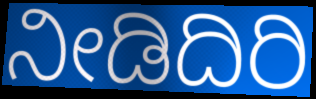
ನೀಡಿದಿರಿ